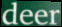
deer